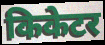
किकेटर